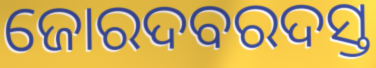
ଜୋରଦବରଦସ୍ତ